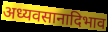
अध्यवसानादिभाव